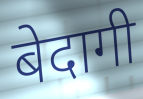
बेदागी